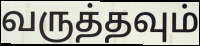
வருத்தவும்